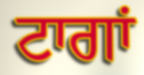
ਟਾਗਾਂ